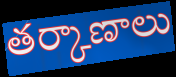
తర్కాణాలు